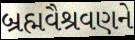
બ્રહ્મવૈશ્રવણને